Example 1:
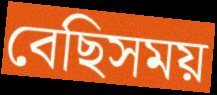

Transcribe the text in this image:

বেছিসময়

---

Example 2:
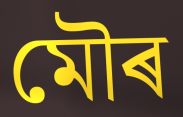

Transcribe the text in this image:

মৌৰ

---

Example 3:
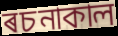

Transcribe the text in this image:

ৰচনাকাল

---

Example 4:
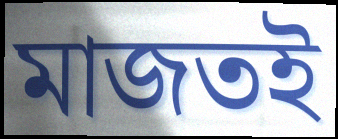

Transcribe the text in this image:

মাজতই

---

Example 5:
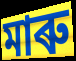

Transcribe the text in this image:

মাৰু